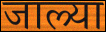
जाल्या